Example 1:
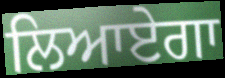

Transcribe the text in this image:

ਲਿਆਏਗਾ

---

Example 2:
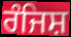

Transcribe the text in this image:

ਰੰਜਿਸ਼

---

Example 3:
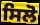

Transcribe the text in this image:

ਸਿਲੋ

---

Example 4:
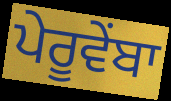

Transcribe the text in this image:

ਪੇਰੂਵੇਂਬਾ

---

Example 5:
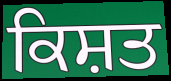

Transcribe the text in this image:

ਕਿਸ਼ਤ